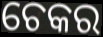
ଚେକର